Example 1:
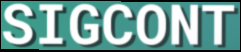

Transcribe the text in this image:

SIGCONT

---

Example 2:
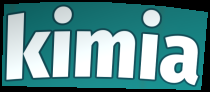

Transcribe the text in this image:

kimia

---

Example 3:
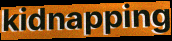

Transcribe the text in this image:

kidnapping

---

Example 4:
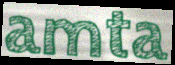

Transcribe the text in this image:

amta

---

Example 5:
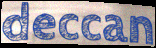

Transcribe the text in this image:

deccan